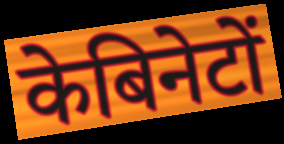
केबिनेटों